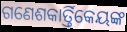
ଗଣେଶକାର୍ତ୍ତିକେୟଙ୍କ